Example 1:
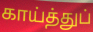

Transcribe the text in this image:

காய்த்துப்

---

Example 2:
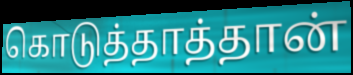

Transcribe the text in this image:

கொடுத்தாத்தான்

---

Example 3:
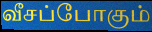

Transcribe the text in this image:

வீசப்போகும்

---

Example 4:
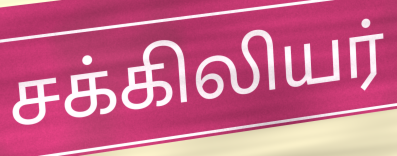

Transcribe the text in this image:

சக்கிலியர்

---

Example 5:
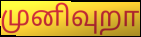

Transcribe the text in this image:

முனிவுறா